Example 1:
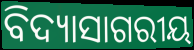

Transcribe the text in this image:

ବିଦ୍ୟାସାଗରୀୟ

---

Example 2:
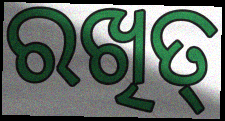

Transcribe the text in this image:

ରଖିତ୍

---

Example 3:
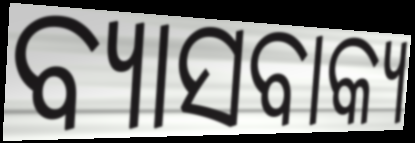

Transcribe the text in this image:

ବ୍ୟାସବାକ୍ୟ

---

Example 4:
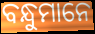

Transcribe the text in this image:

ବନ୍ଧୁମାନେ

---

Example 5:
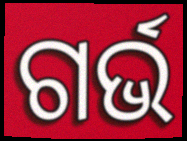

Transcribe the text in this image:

ଗର୍ଭ